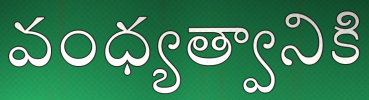
వంధ్యత్వానికి